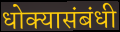
धोक्यासंबंधी